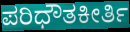
ಪರಿಧೌತಕೀರ್ತಿ